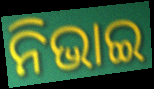
ନିଭାଇ